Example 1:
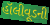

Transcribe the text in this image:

હૉલીવૂડની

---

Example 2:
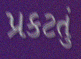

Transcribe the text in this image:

પ્રકટતું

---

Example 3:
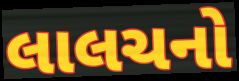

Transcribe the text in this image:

લાલચનો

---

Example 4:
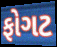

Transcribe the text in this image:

ફોગટ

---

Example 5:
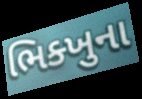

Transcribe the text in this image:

ભિક્ખુના